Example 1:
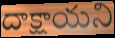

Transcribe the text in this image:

దాక్షాయని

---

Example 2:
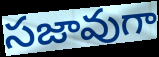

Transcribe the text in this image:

సజావుగా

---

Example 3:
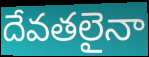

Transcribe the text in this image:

దేవతలైనా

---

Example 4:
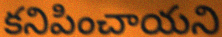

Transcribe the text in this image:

కనిపించాయని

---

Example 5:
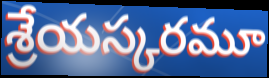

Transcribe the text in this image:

శ్రేయస్కరమూ